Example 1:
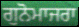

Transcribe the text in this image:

ਗੁਨੋਮਾਜਰਾ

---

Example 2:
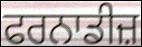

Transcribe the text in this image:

ਫਰਨਾਡੀਜ਼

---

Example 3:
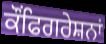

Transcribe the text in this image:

ਕੌਂਫਿਗਰੇਸ਼ਨਾਂ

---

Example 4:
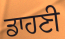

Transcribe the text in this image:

ਡਾਹਣੀ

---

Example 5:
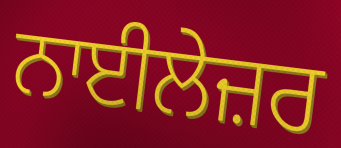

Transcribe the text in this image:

ਨਾਈਲੇਜ਼ਰ